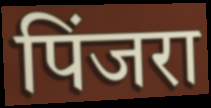
पिंजरा